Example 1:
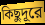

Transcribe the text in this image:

কিছুদূরে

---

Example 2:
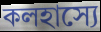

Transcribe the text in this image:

কলহাস্যে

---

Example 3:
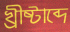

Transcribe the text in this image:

খ্রীষ্টাব্দে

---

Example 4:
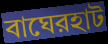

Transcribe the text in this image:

বাঘেরহাট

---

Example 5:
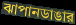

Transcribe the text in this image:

ঝাপানডাঙার